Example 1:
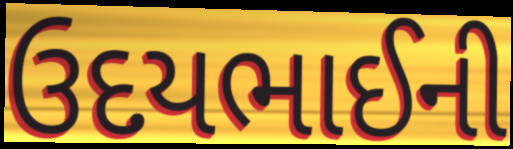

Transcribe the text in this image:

ઉદયભાઈની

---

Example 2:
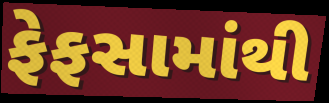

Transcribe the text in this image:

ફેફસામાંથી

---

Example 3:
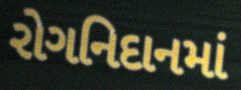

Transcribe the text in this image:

રોગનિદાનમાં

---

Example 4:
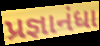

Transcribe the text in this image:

પ્રજ્ઞાનંધા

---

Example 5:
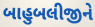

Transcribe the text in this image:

બાહુબલીજીને